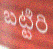
బట్టిరి